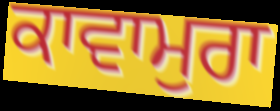
ਕਾਵਾਮੁਰਾ